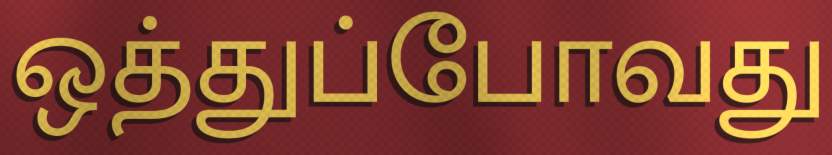
ஒத்துப்போவது